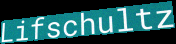
Lifschultz